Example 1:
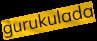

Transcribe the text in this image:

gurukulada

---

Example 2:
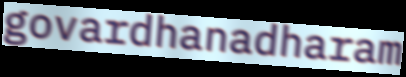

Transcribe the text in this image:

govardhanadharam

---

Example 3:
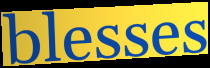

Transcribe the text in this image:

blesses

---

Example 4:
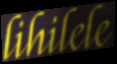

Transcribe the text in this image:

lihilele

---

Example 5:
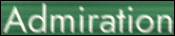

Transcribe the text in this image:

Admiration